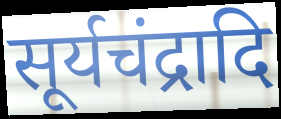
सूर्यचंद्रादि